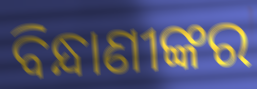
ବିନ୍ଧାଣୀଙ୍କର